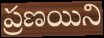
ప్రణయిని